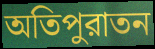
অতিপুরাতন